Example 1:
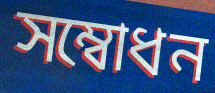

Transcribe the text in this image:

সম্বোধন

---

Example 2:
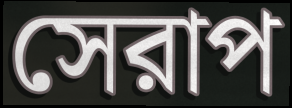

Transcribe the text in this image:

সেরাপ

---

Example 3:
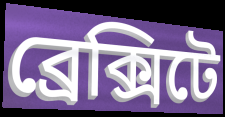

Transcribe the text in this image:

ব্রেক্সিটে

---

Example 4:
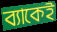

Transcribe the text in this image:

ব্যাকেই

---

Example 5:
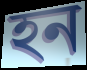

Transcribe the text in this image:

হন